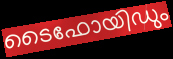
ടൈഫോയിഡും